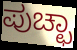
ಪುಚ್ಛಾ